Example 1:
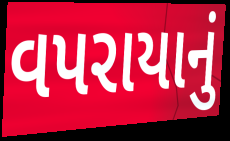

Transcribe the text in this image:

વપરાયાનું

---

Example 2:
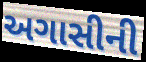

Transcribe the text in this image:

અગાસીની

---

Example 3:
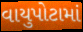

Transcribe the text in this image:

વાયુપોટામાં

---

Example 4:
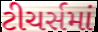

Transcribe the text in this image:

ટીચર્સમાં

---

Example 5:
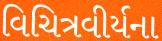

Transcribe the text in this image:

વિચિત્રવીર્યના